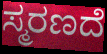
ಸ್ಮರಣದೆ